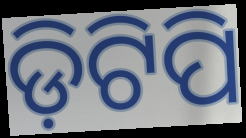
ଡ଼ିଟିପି